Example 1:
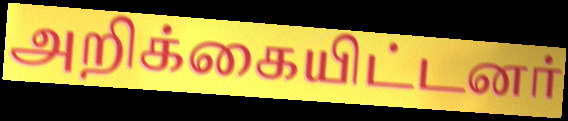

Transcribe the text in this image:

அறிக்கையிட்டனர்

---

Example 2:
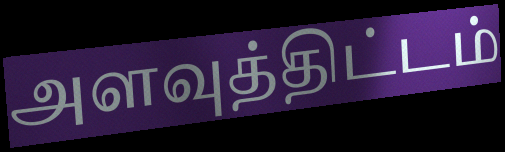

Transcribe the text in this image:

அளவுத்திட்டம்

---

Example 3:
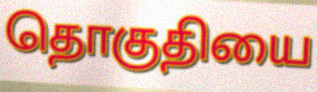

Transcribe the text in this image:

தொகுதியை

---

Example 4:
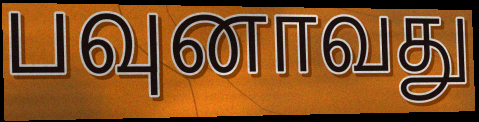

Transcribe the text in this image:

பவுனாவது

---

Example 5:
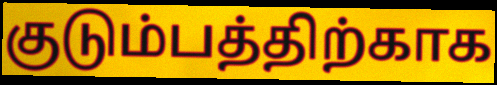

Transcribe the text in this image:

குடும்பத்திற்காக